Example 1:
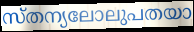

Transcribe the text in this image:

സ്തന്യലോലുപതയാ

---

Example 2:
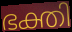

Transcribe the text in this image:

ഭക്തി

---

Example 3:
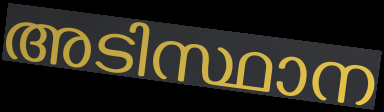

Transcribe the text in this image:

അടിസ്ഥാന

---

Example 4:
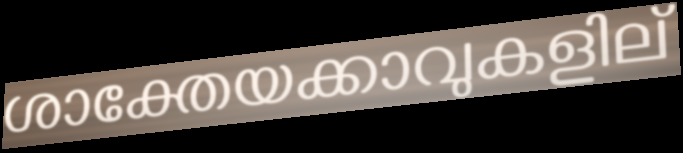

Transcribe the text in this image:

ശാക്തേയക്കാവുകളില്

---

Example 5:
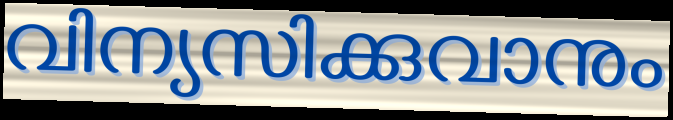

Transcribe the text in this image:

വിന്യസിക്കുവാനും